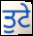
ਤੁਟੇ